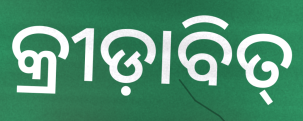
କ୍ରୀଡ଼ାବିତ୍